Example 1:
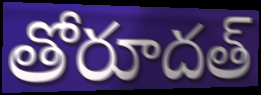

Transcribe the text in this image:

తోరూదత్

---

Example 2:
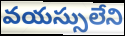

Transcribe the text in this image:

వయస్సులేని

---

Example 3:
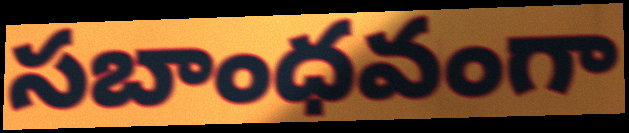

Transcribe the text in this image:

సబాంధవంగా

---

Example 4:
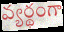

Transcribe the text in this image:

వ్యర్థంగా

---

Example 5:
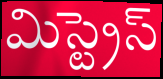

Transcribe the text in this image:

మిస్ట్రెస్